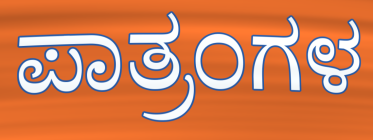
ಪಾತ್ರಂಗಳ